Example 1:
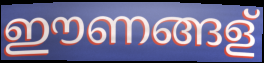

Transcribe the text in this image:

ഈണങ്ങള്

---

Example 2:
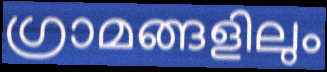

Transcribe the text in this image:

ഗ്രാമങ്ങളിലും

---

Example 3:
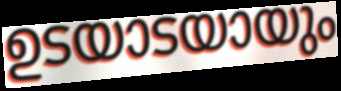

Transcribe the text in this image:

ഉടയാടയായും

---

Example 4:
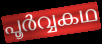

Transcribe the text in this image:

പൂർവ്വകഥ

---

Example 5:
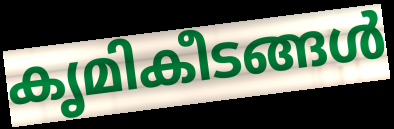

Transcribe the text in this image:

കൃമികീടങ്ങൾ